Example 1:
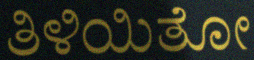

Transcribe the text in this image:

ತಿಳಿಯಿತೋ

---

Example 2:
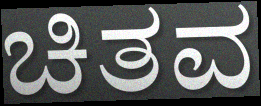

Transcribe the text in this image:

ಚಿತವ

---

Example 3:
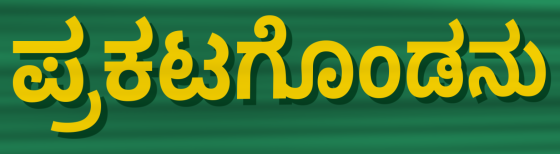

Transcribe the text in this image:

ಪ್ರಕಟಗೊಂಡನು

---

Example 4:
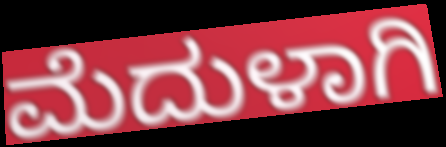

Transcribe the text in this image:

ಮೆದುಳಾಗಿ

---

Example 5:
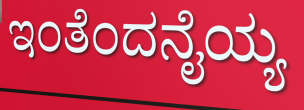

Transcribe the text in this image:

ಇಂತೆಂದನೈಯ್ಯ